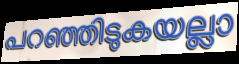
പറഞ്ഞിടുകയല്ലാ